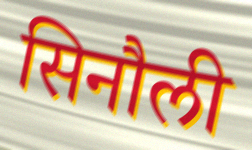
सिनौली